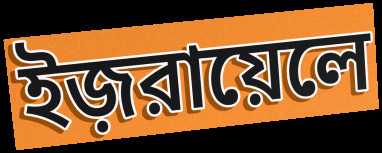
ইজ়রায়েলে